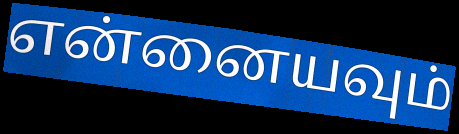
என்னையவும்